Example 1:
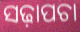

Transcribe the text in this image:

ସଢ଼ାପଚା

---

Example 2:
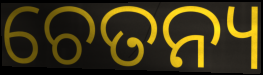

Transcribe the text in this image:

ଚେତନ୍ୟ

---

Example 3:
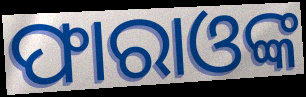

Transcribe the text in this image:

ଫାରାଓଙ୍କ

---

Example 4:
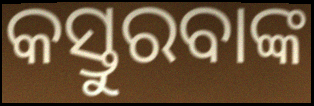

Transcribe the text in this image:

କସ୍ତୁରବାଙ୍କ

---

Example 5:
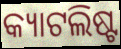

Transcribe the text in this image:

କ୍ୟାଟଲିଷ୍ଟ